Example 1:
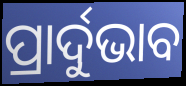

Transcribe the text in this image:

ପ୍ରାର୍ଦୁଭାବ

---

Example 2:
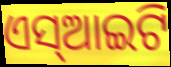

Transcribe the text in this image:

ଏସ୍ଆଇଟି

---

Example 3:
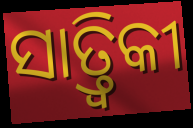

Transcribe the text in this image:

ସାତ୍ତ୍ୱିକୀ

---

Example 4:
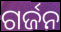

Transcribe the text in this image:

ଗର୍ଜନ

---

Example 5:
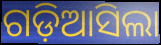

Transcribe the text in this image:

ଗଡ଼ିଆସିଲା